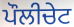
ਪੌਲੀਚੇਟ